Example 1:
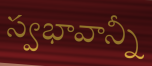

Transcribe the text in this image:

స్వభావాన్నీ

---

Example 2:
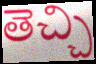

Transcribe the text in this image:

తెచ్చి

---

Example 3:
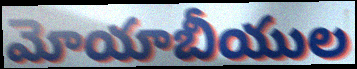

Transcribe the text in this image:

మోయాబీయుల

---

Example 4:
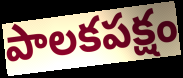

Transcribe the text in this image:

పాలకపక్షం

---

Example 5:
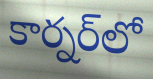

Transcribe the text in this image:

కార్నర్‌లో